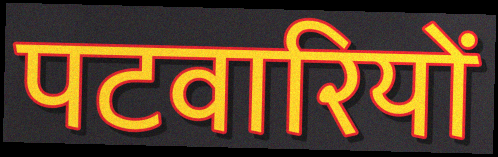
पटवारियों